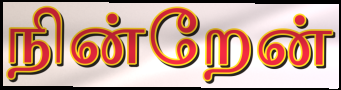
நின்றேன்